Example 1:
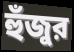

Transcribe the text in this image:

হুঁজুর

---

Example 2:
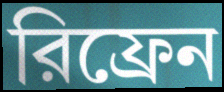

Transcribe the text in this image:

রিফ্রেন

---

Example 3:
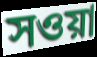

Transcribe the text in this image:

সওয়া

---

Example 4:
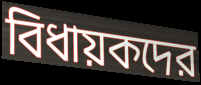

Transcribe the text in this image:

বিধায়কদের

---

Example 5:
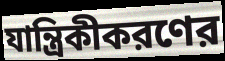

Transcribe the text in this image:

যান্ত্রিকীকরণের